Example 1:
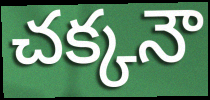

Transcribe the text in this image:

చక్కనౌ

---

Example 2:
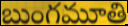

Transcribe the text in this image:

బుంగమూతి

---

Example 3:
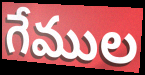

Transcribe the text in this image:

గేముల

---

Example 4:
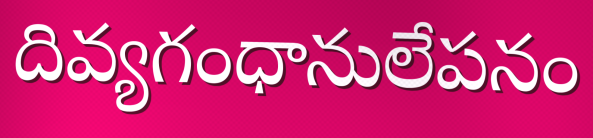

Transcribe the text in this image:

దివ్యగంధానులేపనం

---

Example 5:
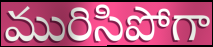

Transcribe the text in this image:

మురిసిపోగా